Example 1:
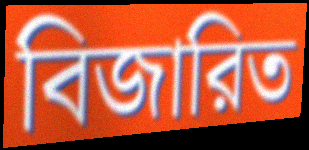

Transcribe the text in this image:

বিজারিত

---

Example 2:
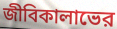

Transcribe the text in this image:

জীবিকালাভের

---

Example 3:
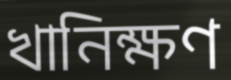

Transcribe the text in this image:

খানিক্ষণ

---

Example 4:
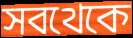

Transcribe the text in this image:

সবথেকে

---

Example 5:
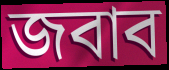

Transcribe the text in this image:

জবাব